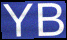
YB